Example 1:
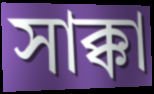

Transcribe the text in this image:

সাক্কা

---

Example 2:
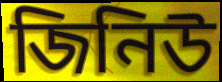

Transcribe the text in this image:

জিনিউ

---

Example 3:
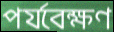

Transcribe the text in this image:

পর্যবেক্ষণ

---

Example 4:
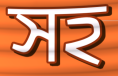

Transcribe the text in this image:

সহ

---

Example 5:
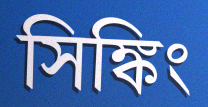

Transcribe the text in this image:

সিঙ্কিং